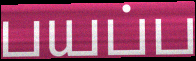
பயப்ப